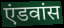
एंडवांस